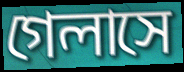
গেলাসে